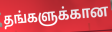
தங்களுக்கான